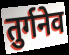
तुर्गनेव